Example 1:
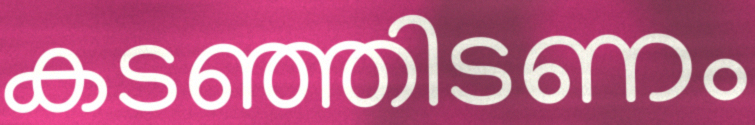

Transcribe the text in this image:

കടഞ്ഞിടണം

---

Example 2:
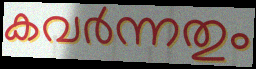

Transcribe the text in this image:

കവർന്നതും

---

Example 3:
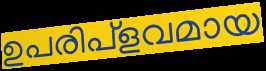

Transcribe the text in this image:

ഉപരിപ്ളവമായ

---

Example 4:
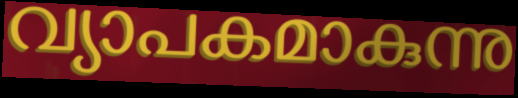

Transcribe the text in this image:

വ്യാപകമാകുന്നു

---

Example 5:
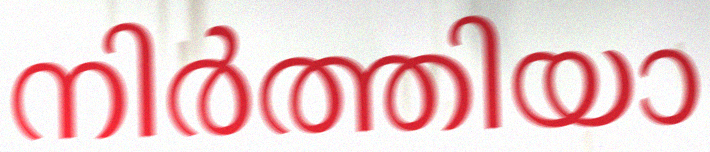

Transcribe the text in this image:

നിർത്തിയാ